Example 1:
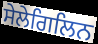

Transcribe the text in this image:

ਸੇਲੇਗਿਲਿਨ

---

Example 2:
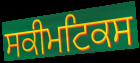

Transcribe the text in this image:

ਸਕੀਮਟਿਕਸ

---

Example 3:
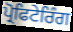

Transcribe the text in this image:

ਪ੍ਰੋਫਿਟੇਰਿੰਗ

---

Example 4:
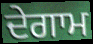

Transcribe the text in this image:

ਦੇਗਾਮ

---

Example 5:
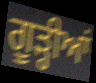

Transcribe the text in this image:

ਗੂੜ੍ਹੀਆਂ